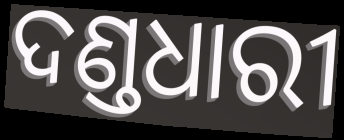
ଦଣ୍ଡଧାରୀ